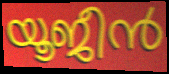
യൂജീൻ